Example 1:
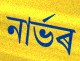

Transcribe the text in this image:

নাৰ্ভৰ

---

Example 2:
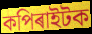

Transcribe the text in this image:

কপিৰাইটক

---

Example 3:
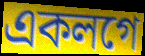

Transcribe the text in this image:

একলগে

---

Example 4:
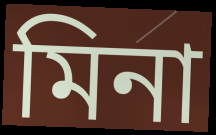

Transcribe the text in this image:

মিনা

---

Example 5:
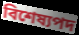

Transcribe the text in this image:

বিশেষ্যপদ